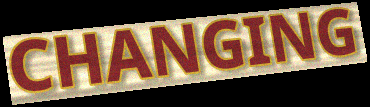
CHANGING